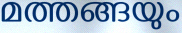
മത്തങ്ങയും